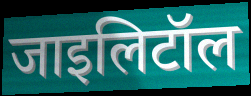
जाइलिटॉल